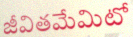
జీవితమేమిటో